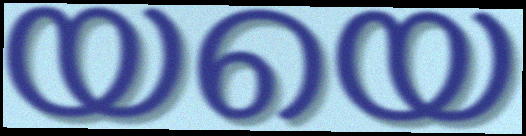
യയെ